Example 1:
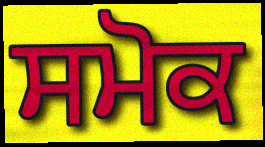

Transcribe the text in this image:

ਸਮੋਕ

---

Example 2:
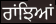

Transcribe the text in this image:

ਰਾਂਝਿਆਂ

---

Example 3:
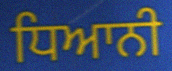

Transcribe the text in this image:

ਧਿਆਨੀ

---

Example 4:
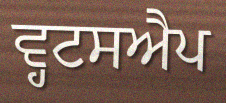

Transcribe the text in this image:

ਵ੍ਹਟਸਐਪ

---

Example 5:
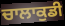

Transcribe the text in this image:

ਚਾਲਾਕੁਡੀ